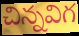
చిన్నవిగ